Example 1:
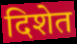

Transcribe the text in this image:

दिशेत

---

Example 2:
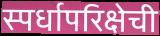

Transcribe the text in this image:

स्पर्धापरिक्षेची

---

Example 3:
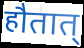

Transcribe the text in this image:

हौतात्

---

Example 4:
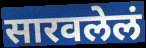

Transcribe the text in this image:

सारवलेलं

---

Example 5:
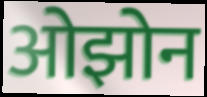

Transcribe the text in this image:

ओझोन